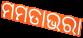
ମମତାଭରା